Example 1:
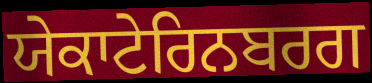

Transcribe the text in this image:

ਯੇਕਾਟੇਰਿਨਬਰਗ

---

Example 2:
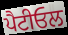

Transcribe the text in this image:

ਪੈਟੀਓਲ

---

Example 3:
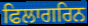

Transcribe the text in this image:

ਫਿਲਾਗਰਿਨ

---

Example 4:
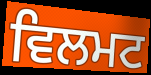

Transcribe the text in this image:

ਵਿਲਮਟ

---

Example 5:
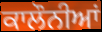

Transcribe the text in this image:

ਕਾਲੌਨੀਆਂ